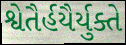
શ્વેતૈર્હયૈર્યુક્તે